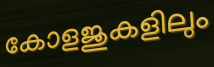
കോളജുകളിലും